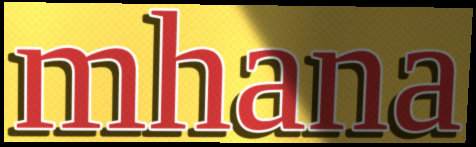
mhana